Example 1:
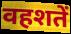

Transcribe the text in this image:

वहशतें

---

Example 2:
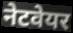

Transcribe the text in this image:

नेटवेयर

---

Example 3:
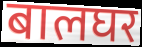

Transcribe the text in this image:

बालघर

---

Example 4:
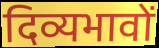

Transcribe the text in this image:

दिव्यभावों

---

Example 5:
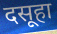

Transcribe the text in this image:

दसूहा